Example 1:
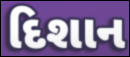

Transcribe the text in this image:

દિશાન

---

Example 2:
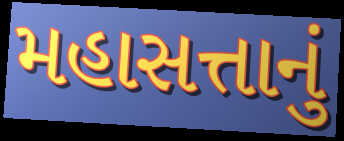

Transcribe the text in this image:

મહાસત્તાનું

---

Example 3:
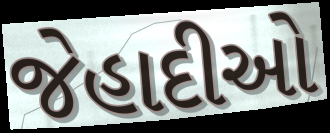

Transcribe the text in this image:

જેહાદીઓ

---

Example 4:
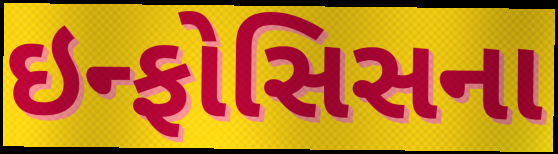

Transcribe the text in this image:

ઇન્ફોસિસના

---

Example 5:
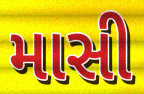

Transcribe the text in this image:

માસી